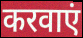
करवाएं